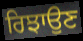
ਰਿਝਾਉਣ